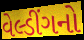
વેલ્ડીંગનો